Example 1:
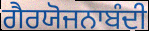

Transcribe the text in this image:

ਗੈਰਯੋਜਨਾਬੰਦੀ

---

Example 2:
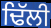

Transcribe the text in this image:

ਢਿੱਲੀ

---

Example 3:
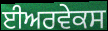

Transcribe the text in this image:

ਈਅਰਵੇਕਸ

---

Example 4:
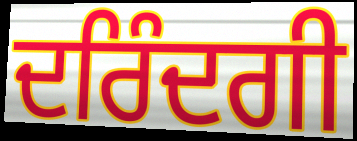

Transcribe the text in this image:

ਦਰਿੰਦਗੀ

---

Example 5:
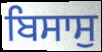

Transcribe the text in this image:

ਬਿਸਾਸੁ